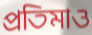
প্রতিমাও